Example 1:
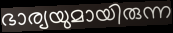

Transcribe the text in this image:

ഭാര്യയുമായിരുന്ന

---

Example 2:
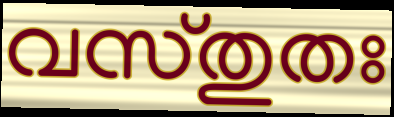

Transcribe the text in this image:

വസ്തുതഃ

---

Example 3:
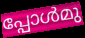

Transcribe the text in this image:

പ്പോൾമു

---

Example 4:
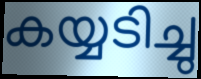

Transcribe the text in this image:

കയ്യടിച്ചു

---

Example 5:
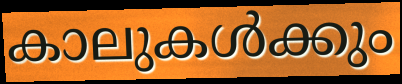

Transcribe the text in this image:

കാലുകൾക്കും